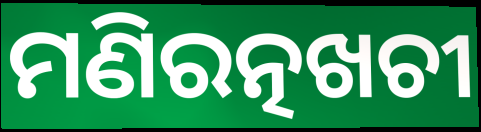
ମଣିରତ୍ନଖଚୀ